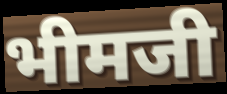
भीमजी